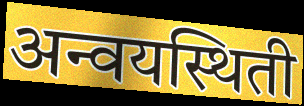
अन्वयस्थिती